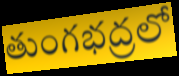
తుంగభద్రలో